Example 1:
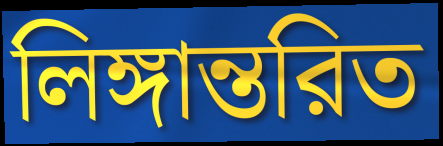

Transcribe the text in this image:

লিঙ্গান্তরিত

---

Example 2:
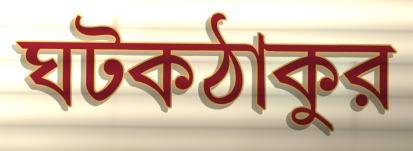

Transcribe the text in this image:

ঘটকঠাকুর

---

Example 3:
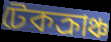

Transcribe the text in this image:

টেকক্রাঞ্চ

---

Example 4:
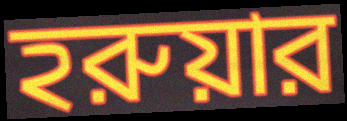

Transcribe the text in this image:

হরুয়ার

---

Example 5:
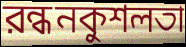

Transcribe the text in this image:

রন্ধনকুশলতা